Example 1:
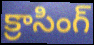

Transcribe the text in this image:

క్రాసింగ్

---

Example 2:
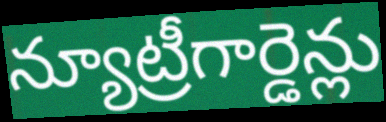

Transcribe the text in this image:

న్యూట్రీగార్డెన్లు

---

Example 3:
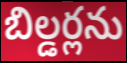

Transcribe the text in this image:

బిల్డర్లను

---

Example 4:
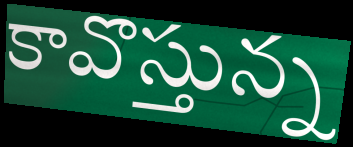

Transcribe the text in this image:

కావొస్తున్న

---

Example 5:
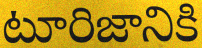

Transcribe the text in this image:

టూరిజానికి